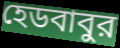
হেডবাবুর